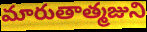
మారుతాత్మజుని